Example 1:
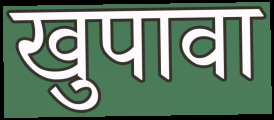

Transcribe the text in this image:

खुपावा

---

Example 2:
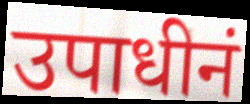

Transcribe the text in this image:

उपाधीनं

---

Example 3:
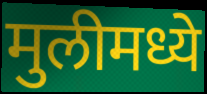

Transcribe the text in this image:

मुलीमध्ये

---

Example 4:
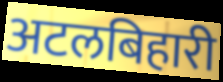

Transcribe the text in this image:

अटलबिहारी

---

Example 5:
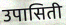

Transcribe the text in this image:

उपासिती